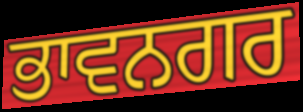
ਭਾਵਨਗਰ